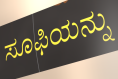
ಸೂಫಿಯನ್ನು